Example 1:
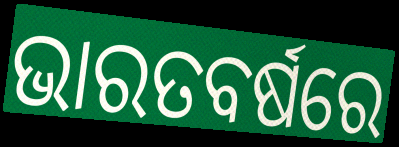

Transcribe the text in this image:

ଭାରତବର୍ଷରେ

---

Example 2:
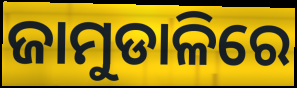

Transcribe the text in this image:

ଜାମୁଡାଳିରେ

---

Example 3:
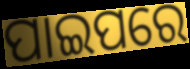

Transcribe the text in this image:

ପାଇପରେ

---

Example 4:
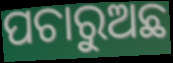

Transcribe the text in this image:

ପଚାରୁଅଛ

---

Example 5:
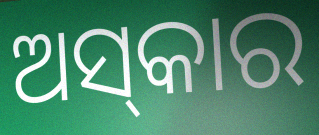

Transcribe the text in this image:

ଅସ୍‌କାର